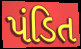
પંડિત